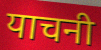
याचनी